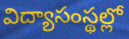
విద్యాసంస్థల్లో